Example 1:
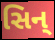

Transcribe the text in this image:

સિન્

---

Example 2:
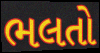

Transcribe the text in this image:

ભલતો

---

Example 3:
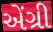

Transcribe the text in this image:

એંગ્રી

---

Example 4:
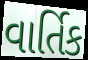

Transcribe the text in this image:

વાર્તિક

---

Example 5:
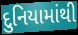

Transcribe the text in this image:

દુનિયામાંથી